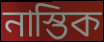
নাস্তিক